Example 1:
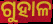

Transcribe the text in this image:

ଗୁହାଳ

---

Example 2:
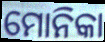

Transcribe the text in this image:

ମୋନିକା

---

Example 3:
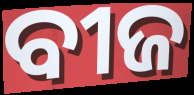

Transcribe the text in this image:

ବୀଜ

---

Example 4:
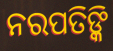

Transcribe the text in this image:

ନରପତିଙ୍କି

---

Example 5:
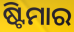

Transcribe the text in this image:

ଷ୍ଟିମାର